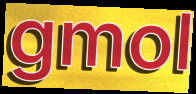
gmol